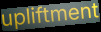
upliftment